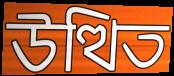
উত্থিত